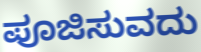
ಪೂಜಿಸುವದು